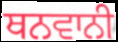
ਥਨਵਾਨੀ